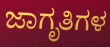
ಜಾಗೃತಿಗಳ